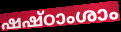
ഷഷ്ഠാംശാം